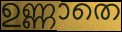
ഉണ്ണാതെ